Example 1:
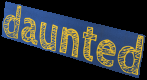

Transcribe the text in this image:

daunted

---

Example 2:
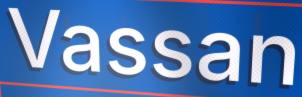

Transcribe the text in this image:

Vassan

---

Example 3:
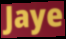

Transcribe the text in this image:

Jaye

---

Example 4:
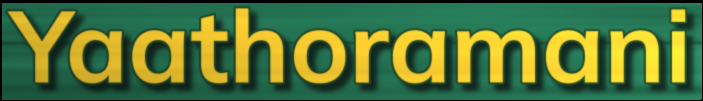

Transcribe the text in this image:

Yaathoramani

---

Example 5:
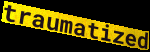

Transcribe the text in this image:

traumatized